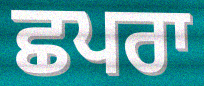
ਛਪਰਾ